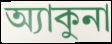
অ্যাকুনা